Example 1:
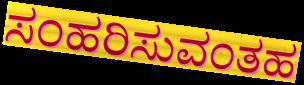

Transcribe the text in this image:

ಸಂಹರಿಸುವಂತಹ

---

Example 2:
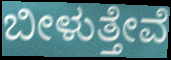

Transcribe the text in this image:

ಬೀಳುತ್ತೇವೆ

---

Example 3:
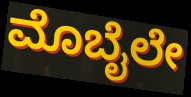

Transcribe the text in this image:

ಮೊಬೈಲೇ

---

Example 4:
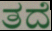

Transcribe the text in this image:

ತದೆ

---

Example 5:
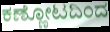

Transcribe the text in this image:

ಕಣ್ಣೋಟದಿಂದ